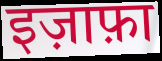
इज़ाफ़ा